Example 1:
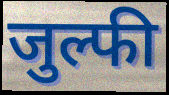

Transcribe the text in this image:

जुल्फी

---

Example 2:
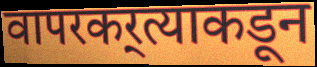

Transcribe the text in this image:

वापरकर्त्याकडून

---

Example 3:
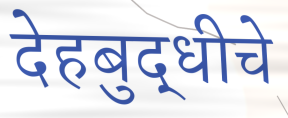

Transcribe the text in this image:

देहबुद्धीचे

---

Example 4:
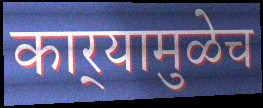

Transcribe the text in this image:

कार्यामुळेच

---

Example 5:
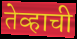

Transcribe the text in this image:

तेव्हाची